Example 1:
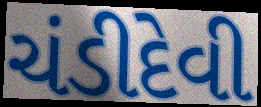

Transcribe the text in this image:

ચંડીદેવી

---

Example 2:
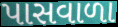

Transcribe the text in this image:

પાસવાળા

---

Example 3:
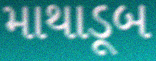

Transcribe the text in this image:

માથાડૂબ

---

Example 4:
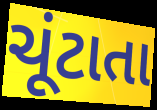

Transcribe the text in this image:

ચૂંટાતા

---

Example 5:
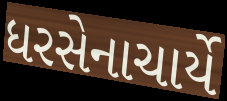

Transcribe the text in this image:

ધરસેનાચાર્યે